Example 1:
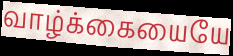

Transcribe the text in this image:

வாழ்க்கையையே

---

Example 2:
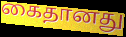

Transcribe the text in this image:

கைதானது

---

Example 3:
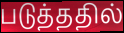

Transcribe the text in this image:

படுத்ததில்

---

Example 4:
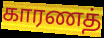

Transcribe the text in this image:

காரணத்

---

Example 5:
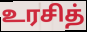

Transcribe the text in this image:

உரசித்